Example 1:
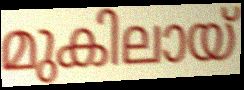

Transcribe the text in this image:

മുകിലായ്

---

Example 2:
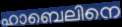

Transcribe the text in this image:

ഹാബെലിനെ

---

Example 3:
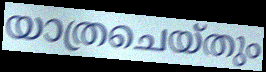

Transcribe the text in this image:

യാത്രചെയ്തും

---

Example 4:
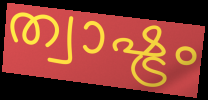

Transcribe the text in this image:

ത്വാഷ്ട്രം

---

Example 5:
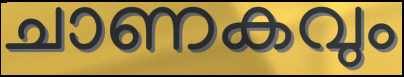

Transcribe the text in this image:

ചാണകവും